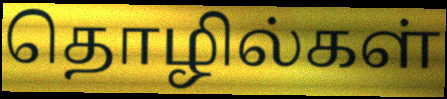
தொழில்கள்